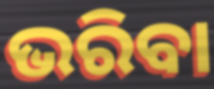
ଭରିବା